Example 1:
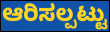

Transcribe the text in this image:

ಆರಿಸಲ್ಪಟ್ಟು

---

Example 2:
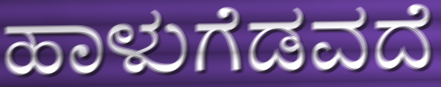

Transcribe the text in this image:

ಹಾಳುಗೆಡವದೆ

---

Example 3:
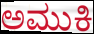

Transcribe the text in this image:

ಅಮುಕಿ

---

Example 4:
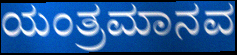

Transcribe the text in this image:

ಯಂತ್ರಮಾನವ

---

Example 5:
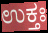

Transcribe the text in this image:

ಉಕ್ತಃ